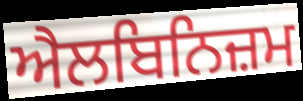
ਐਲਬਿਨਿਜ਼ਮ